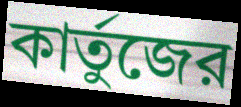
কার্তুজের